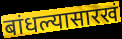
बांधल्यासारखं